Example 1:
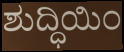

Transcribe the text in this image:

ಶುದ್ಧಿಯಿಂ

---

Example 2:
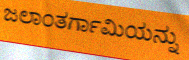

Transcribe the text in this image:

ಜಲಾಂತರ್ಗಾಮಿಯನ್ನು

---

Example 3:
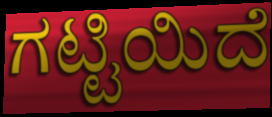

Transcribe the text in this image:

ಗಟ್ಟಿಯಿದೆ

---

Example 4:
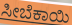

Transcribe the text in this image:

ಸೀಬೆಕಾಯಿ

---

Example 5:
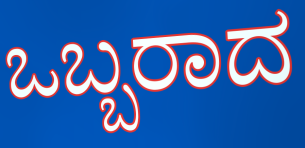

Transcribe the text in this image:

ಒಬ್ಬರಾದ